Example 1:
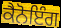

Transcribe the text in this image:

ਕੈਨੋਇੰਗ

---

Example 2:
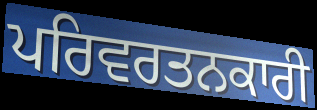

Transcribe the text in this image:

ਪਰਿਵਰਤਨਕਾਰੀ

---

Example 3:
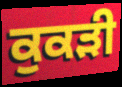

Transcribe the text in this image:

ਕੁਕੜੀ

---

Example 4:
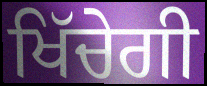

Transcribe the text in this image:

ਖਿੱਚੇਗੀ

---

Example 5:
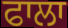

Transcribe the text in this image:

ਫਾਲਾ